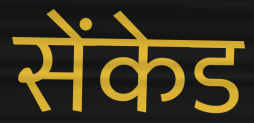
सेंकेड